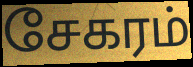
சேகரம்